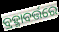
ବ୍ରହ୍ମାବର୍ତ୍ତରେ